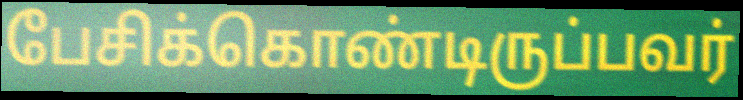
பேசிக்கொண்டிருப்பவர்